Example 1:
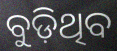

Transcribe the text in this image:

ବୁଡ଼ିଥିବ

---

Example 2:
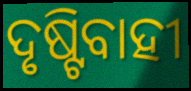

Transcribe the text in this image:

ଦୃଷ୍ଟିବାହୀ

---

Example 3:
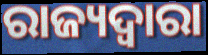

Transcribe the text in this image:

ରାଜ୍ୟଦ୍ୱାରା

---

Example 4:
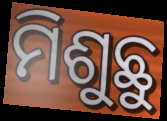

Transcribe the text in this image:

ମିଶୁଛୁ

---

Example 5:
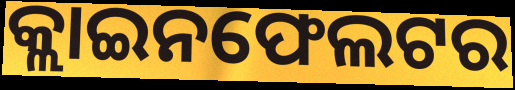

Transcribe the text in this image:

କ୍ଲାଇନଫେଲଟର